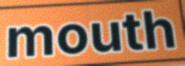
mouth